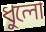
ধুলো